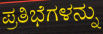
ಪ್ರತಿಭೆಗಳನ್ನು